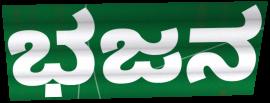
ಭಜನ